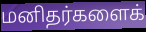
மனிதர்களைக்